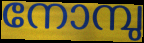
നോമ്പു